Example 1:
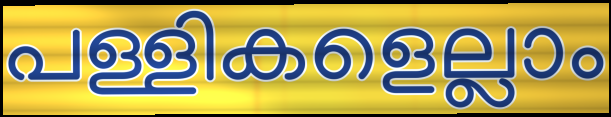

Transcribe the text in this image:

പള്ളികളെല്ലാം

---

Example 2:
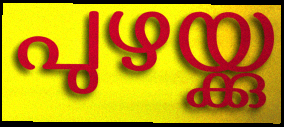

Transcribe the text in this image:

പുഴയ്ക്കു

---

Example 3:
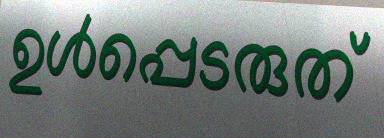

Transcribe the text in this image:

ഉൾപ്പെടരുത്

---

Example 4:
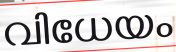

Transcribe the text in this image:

വിധേയം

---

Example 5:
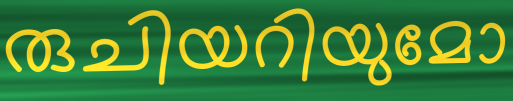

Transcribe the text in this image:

രുചിയറിയുമോ